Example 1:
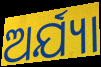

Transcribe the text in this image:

ଅର୍ଯ୍ୟା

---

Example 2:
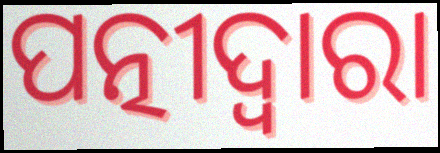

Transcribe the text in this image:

ପତ୍ନୀଦ୍ୱାରା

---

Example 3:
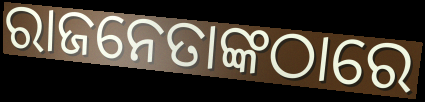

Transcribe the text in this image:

ରାଜନେତାଙ୍କଠାରେ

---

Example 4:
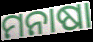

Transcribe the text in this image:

ମନାଷା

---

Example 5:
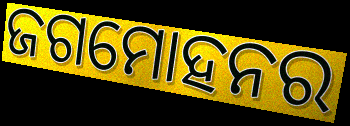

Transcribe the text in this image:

ଜଗମୋହନର